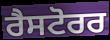
ਰੈਸਟੋਰਰ